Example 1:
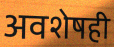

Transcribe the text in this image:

अवशेषही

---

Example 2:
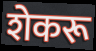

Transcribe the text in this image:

शेकरू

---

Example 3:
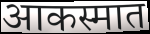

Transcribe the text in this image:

आकस्मात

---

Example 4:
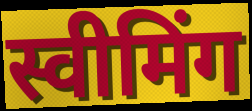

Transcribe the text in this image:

स्वीमिंग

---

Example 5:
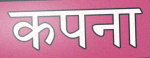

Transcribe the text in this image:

कपना